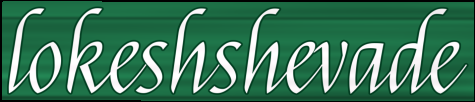
lokeshshevade